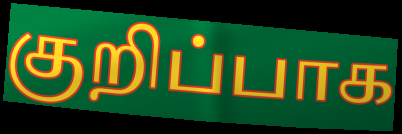
குறிப்பாக